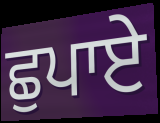
ਛੁਪਾਏ